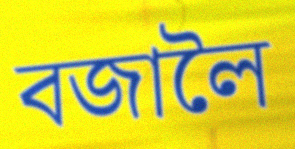
বজালৈ